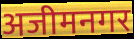
अजीमनगर